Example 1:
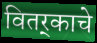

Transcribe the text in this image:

वितर्काचे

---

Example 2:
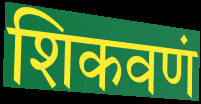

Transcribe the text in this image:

शिकवणं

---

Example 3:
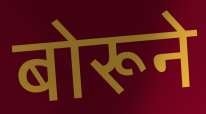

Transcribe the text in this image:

बोरूने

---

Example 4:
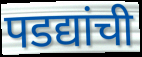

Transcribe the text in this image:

पडद्यांची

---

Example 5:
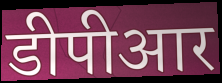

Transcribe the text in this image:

डीपीआर